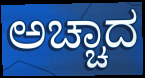
ಅಚ್ಚಾದ